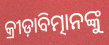
କ୍ରୀଡ଼ାବିତ୍ମାନଙ୍କୁ